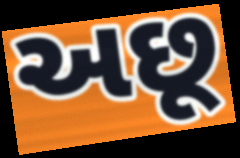
અછૂ